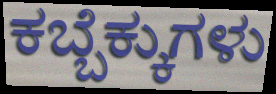
ಕಬ್ಬೆಕ್ಕುಗಳು